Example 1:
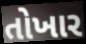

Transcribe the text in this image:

તોખાર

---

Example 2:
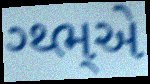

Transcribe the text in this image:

ગ્થ્ભ્એ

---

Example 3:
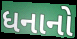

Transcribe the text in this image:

ધનાનો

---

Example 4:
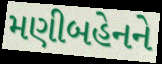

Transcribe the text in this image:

મણીબહેનને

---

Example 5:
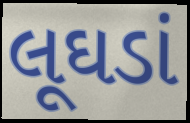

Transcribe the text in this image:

લૂઘડાં